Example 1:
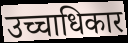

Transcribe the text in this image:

उच्चाधिकार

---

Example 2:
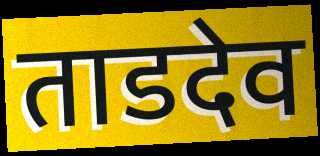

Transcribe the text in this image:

ताडदेव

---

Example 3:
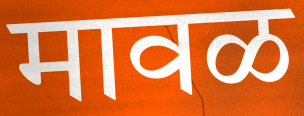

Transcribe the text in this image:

मावळ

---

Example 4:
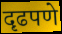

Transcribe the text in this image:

दृढपणे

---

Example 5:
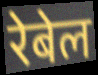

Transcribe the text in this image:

रेबेल